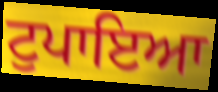
ਟੁਪਾਇਆ